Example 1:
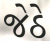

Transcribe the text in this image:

જેઠે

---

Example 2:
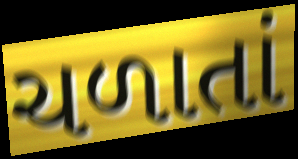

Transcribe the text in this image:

ચળાતાં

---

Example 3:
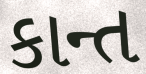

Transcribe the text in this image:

કાન્ત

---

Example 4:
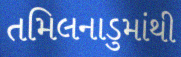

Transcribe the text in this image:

તમિલનાડુમાંથી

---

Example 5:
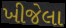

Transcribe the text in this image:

ખીજેલા